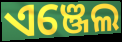
ଏଞ୍ଜେଲ